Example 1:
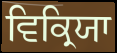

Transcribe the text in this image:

ਵਿਕ੍ਰਿਯਾ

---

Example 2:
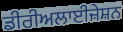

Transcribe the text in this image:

ਡੀਰੀਅਲਾਈਜ਼ੇਸ਼ਨ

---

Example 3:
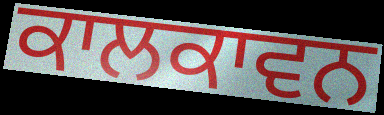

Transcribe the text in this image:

ਕਾਲਕਾਵਨ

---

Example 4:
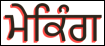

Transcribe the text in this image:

ਮੇਕਿੰਗ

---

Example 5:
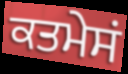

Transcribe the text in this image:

ਕਤਮੇਸਂ